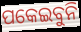
ପକେଇବୁନି